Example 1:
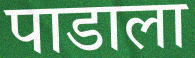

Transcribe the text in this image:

पाडाला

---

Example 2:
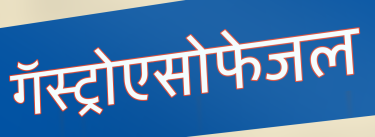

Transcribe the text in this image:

गॅस्ट्रोएसोफेजल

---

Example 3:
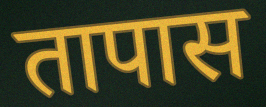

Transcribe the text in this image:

तापास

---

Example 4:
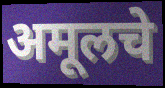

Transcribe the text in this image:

अमूलचे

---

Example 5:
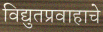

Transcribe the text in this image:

विद्युतप्रवाहाचे